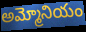
అమ్మోనియం